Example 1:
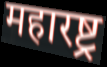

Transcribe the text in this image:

महारष्ट्र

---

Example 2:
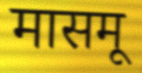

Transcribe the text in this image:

मासमू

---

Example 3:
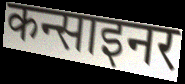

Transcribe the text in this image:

कन्साइनर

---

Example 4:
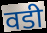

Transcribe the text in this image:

वडी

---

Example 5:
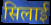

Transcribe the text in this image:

सिलाई